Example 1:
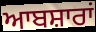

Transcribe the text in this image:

ਆਬਸ਼ਾਰਾਂ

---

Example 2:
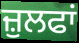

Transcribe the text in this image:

ਜ਼ੁਲਫਾਂ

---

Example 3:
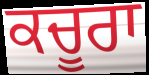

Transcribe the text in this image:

ਕਚੂਰਾ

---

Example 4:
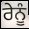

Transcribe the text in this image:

ਰੇਨੂੰ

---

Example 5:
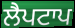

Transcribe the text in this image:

ਲੈਪਟਾਪ